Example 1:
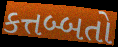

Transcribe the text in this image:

કત્તબ્બતો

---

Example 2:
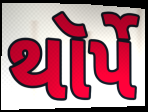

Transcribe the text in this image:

થૉર્પે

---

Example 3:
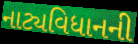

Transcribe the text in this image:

નાટ્યવિધાનની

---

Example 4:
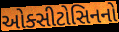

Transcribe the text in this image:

ઓક્સીટોસિનનો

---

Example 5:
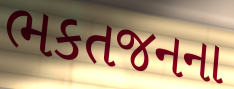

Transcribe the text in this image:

ભકતજનના